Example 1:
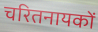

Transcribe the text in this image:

चरितनायकों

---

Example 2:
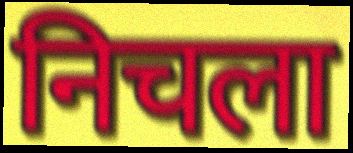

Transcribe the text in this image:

निचला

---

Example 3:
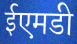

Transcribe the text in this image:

ईएमडी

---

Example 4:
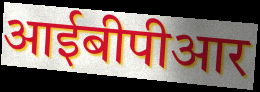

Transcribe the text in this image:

आईबीपीआर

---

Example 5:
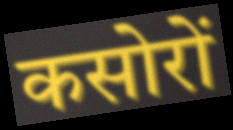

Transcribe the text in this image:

कसोरों